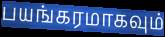
பயங்கரமாகவும்